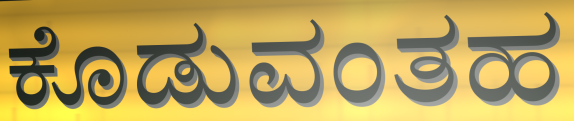
ಕೊಡುವಂತಹ